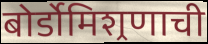
बोर्डोमिश्रणाची